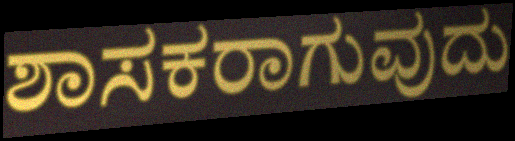
ಶಾಸಕರಾಗುವುದು